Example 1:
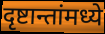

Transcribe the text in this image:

दृष्टान्तांमध्ये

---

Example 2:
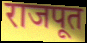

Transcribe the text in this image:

राजपूत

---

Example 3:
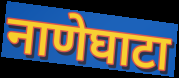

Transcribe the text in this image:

नाणेघाटा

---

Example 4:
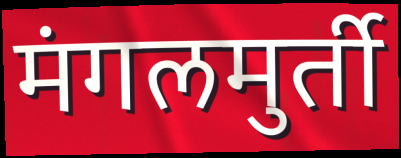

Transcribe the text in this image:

मंगलमुर्ती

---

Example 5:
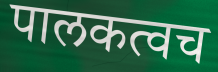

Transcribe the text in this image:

पालकत्वच